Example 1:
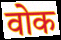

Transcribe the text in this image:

वोक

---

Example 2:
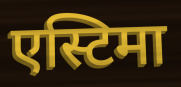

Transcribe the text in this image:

एस्टिमा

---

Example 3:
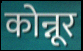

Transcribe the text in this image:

कोन्नूर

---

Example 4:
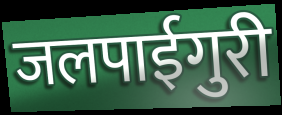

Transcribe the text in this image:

जलपाईगुरी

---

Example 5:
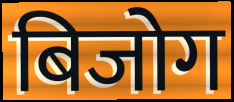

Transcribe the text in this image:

बिजोग